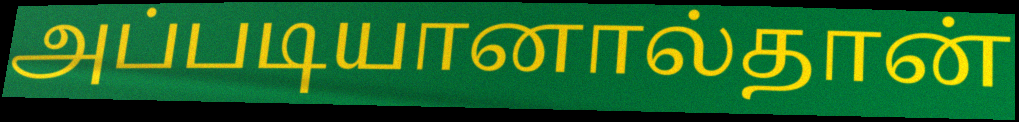
அப்படியானால்தான்